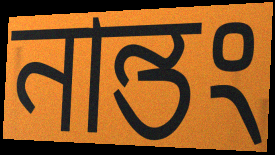
নান্তং